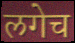
लगेच